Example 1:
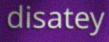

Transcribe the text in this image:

disatey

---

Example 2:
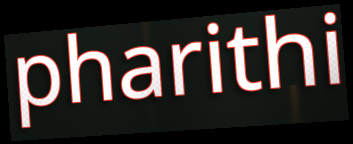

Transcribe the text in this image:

pharithi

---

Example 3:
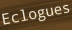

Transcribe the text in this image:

Eclogues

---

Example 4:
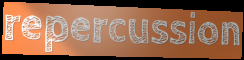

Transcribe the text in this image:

repercussion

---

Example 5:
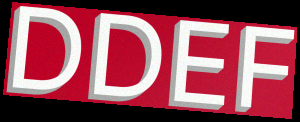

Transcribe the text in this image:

DDEF